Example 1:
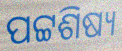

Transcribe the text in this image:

ପଟ୍ଟଶିଷ୍ୟ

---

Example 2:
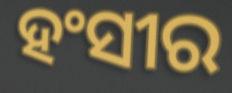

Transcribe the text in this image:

ହଂସୀର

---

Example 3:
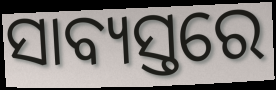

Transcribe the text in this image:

ସାବ୍ୟସ୍ତରେ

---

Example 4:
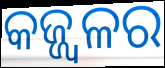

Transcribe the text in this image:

କଜ୍ଜ୍ୱଳର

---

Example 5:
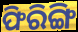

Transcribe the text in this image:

ଫିରିଙ୍ଗି